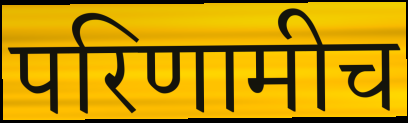
परिणामीच